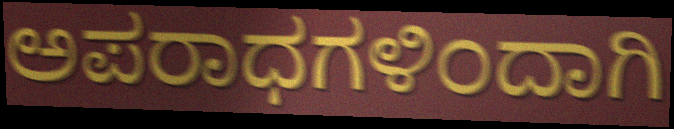
ಅಪರಾಧಗಳಿಂದಾಗಿ